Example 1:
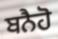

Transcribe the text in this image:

ਬਨੈਹੋ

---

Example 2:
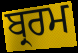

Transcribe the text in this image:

ਬ੍ਰਰਮ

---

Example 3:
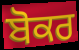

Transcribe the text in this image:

ਬੋਕਰ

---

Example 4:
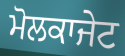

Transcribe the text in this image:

ਮੋਲਕਾਜੇਟ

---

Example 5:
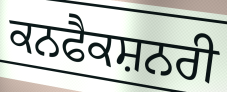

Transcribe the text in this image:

ਕਨਫੈਕਸ਼ਨਰੀ